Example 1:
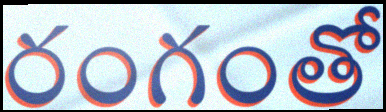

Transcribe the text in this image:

రంగంతో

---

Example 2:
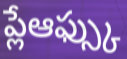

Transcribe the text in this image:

ప్లేఆఫ్స్కు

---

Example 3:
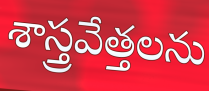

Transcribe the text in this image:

శాస్త్రవేత్తలను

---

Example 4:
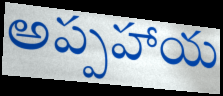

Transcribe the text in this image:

అప్పహాయ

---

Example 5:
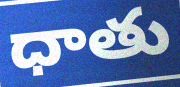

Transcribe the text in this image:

ధాతు